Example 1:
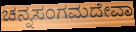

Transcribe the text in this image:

ಚನ್ನಸಂಗಮದೇವಾ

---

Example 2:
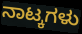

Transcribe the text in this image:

ನಾಟ್ಕಗಳು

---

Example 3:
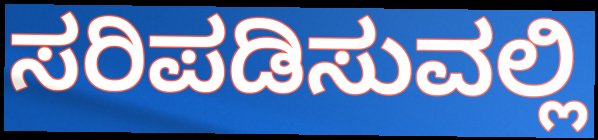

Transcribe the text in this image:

ಸರಿಪಡಿಸುವಲ್ಲಿ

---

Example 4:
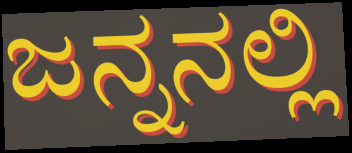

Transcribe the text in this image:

ಜನ್ನನಲ್ಲಿ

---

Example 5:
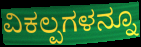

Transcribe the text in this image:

ವಿಕಲ್ಪಗಳನ್ನೂ